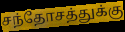
சந்தோசத்துக்கு